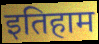
इतिहाम